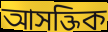
আসক্তিক